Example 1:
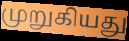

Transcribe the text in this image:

முறுகியது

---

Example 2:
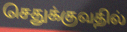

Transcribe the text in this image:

செதுக்குவதில்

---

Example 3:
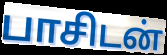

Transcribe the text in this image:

பாசிடன்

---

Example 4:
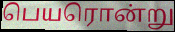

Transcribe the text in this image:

பெயரொன்று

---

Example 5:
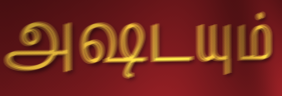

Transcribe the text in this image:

அஷடயும்